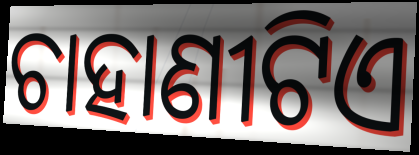
ଚାହାଣୀଟିଏ